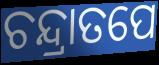
ଚନ୍ଦ୍ରାତପେ